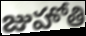
జుహోతి